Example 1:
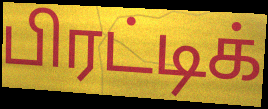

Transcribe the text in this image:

பிரட்டிக்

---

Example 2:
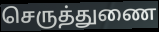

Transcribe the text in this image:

செருத்துணை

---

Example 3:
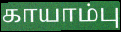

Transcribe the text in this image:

காயாம்பு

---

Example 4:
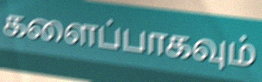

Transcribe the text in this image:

களைப்பாகவும்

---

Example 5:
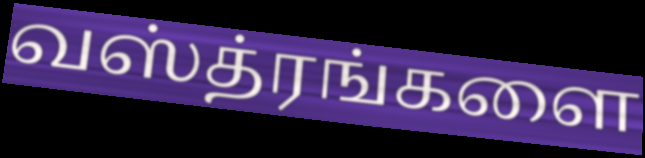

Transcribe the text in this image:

வஸ்த்ரங்களை